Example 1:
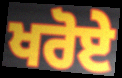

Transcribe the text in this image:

ਖਰੋਏ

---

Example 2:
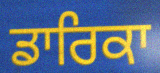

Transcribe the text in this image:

ਡਾਰਿਕਾ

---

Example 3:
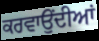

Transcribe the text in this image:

ਕਰਵਾਉਂਦੀਆਂ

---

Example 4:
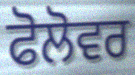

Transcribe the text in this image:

ਫੋਲੋਵਰ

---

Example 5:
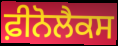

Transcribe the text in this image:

ਫ਼ੀਨੋਲੈਕਸ